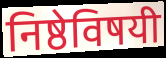
निष्ठेविषयी